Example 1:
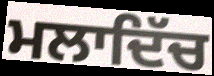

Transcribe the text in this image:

ਮਲਾਦਿੱਚ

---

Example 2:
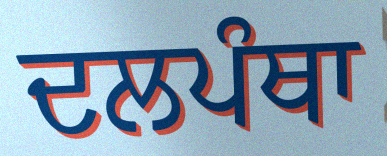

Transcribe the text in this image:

ਦਲਪੰਥਾ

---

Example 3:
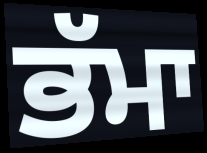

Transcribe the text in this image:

ਭੱਮਾ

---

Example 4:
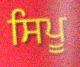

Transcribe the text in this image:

ਸਿਪੂ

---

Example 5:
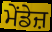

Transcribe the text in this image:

ਮੇਂਡੇਜ਼